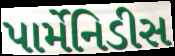
પાર્મેનિડીસ